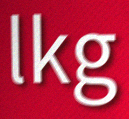
lkg